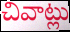
చివాట్లు